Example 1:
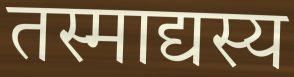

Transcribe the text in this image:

तस्माद्यस्य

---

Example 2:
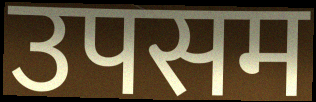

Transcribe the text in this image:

उपसम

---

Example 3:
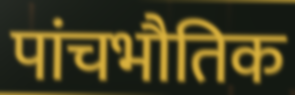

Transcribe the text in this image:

पांचभौतिक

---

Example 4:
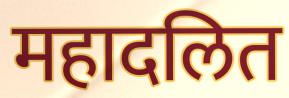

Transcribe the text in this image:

महादलित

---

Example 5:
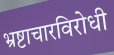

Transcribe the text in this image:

भ्रष्टाचारविरोधी